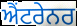
ਐਂਟਰੇਨਰ